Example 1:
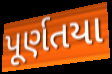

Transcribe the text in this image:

પૂર્ણતયા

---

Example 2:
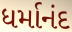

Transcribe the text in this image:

ધર્માનંદ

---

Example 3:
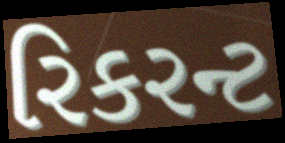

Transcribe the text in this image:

રિકરન્ટ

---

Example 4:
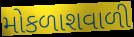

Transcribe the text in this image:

મોકળાશવાળી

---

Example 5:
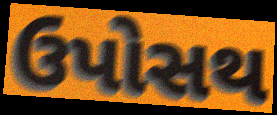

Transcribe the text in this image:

ઉપોસથ